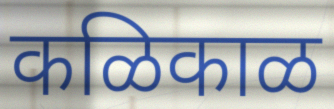
कळिकाळ